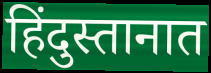
हिंदुस्तानात